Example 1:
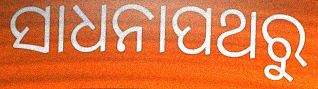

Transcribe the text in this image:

ସାଧନାପଥରୁ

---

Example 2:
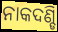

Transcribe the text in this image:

ନାକଦଣ୍ଡି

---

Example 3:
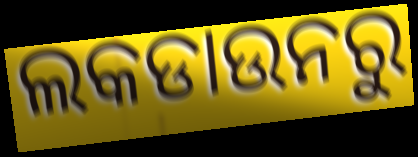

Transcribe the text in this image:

ଲକଡାଉନରୁ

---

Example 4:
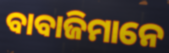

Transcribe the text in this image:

ବାବାଜିମାନେ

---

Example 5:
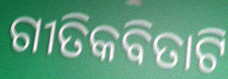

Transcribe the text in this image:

ଗୀତିକବିତାଟି